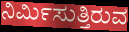
ನಿರ್ಮಿಸುತ್ತಿರುವ